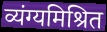
व्यंग्यमिश्रित